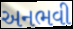
અનભવી